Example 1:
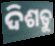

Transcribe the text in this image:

ଦିଶତୁ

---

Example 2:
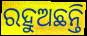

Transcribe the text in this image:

ରହୁଅଛନ୍ତି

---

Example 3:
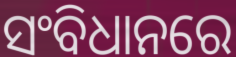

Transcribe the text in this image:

ସଂବିଧାନରେ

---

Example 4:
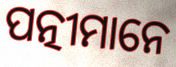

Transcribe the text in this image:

ପତ୍ନୀମାନେ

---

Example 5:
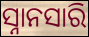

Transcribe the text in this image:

ସ୍ନାନସାରି